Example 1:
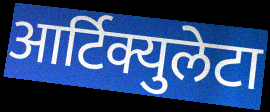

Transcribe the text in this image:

आर्टिक्युलेटा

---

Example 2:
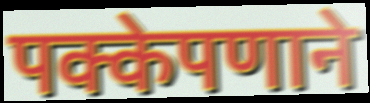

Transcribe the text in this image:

पक्केपणाने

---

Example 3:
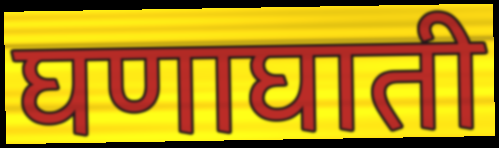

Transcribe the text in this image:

घणाघाती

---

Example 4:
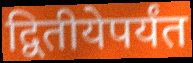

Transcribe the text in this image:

द्वितीयेपर्यंत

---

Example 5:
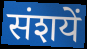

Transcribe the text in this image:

संशयें